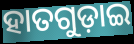
ହାତଗୁଡ଼ାଇ